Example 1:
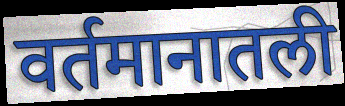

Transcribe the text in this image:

वर्तमानातली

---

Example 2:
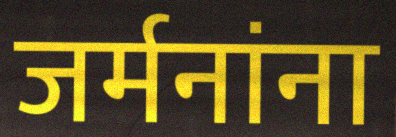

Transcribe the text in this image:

जर्मनांना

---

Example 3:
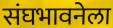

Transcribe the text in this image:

संघभावनेला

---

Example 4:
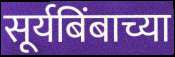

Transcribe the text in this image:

सूर्यबिंबाच्या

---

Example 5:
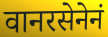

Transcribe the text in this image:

वानरसेनेनं